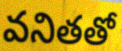
వనితతో